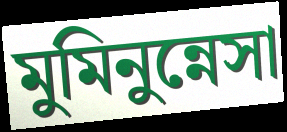
মুমিনুন্নেসা